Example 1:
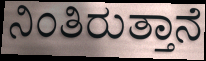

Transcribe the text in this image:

ನಿಂತಿರುತ್ತಾನೆ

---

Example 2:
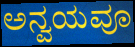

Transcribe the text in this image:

ಅನ್ವಯವೂ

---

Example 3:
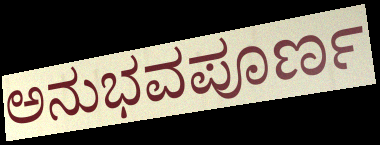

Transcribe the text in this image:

ಅನುಭವಪೂರ್ಣ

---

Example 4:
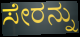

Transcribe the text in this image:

ಸೇರನ್ನು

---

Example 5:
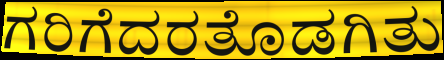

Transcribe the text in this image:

ಗರಿಗೆದರತೊಡಗಿತು